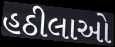
હઠીલાઓ